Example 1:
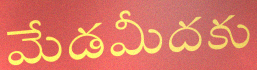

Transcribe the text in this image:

మేడమీదకు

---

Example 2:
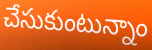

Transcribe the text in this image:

చేసుకుంటున్నాం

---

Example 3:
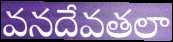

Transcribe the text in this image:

వనదేవతలా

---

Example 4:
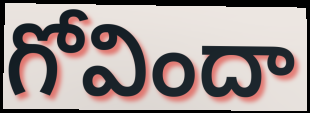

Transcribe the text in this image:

గోవిందా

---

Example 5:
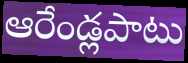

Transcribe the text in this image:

ఆరేండ్లపాటు